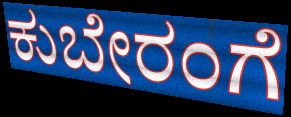
ಕುಬೇರಂಗೆ